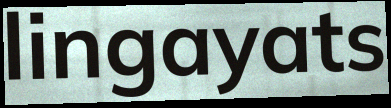
lingayats